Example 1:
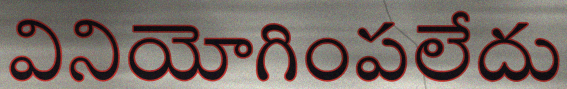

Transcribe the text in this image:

వినియోగింపలేదు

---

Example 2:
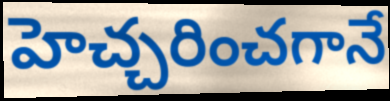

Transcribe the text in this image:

హెచ్చరించగానే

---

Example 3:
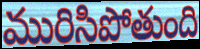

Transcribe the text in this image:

మురిసిపోతుంది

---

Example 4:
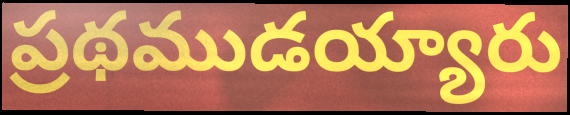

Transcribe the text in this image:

ప్రథముడయ్యారు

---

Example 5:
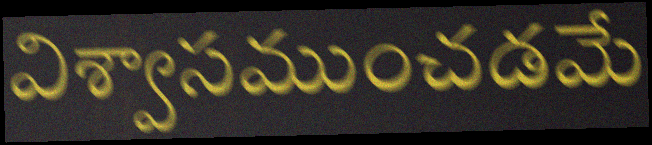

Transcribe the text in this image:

విశ్వాసముంచడమే